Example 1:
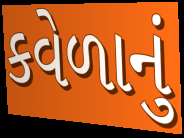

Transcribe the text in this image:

કવેળાનું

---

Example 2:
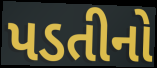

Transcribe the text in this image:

પડતીનો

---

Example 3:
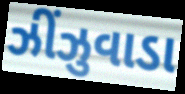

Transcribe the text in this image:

ઝીંઝુવાડા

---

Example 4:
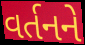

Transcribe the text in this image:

વર્તનને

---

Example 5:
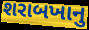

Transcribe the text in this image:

શરાબખાનુ